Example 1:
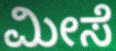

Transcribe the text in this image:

ಮೀಸೆ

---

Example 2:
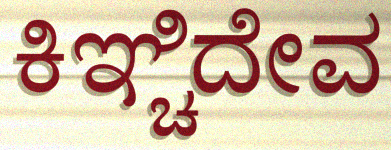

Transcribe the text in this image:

ಕಿಞ್ಚಿದೇವ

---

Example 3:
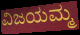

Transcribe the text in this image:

ವಿಜಯಮ್ಮ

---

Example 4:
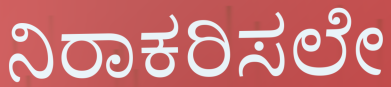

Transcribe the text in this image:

ನಿರಾಕರಿಸಲೇ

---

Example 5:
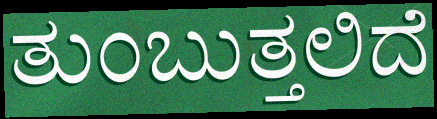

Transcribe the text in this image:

ತುಂಬುತ್ತಲಿದೆ